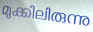
മുക്കിലിരുന്നു